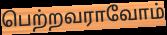
பெற்றவராவோம்